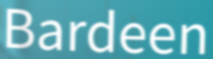
Bardeen